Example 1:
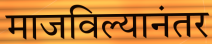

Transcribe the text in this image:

माजविल्यानंतर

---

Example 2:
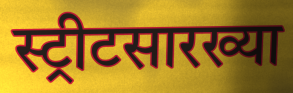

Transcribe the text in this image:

स्ट्रीटसारख्या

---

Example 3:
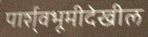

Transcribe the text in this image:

पार्श्वभूमीदेखील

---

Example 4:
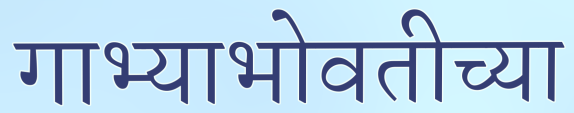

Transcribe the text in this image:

गाभ्याभोवतीच्या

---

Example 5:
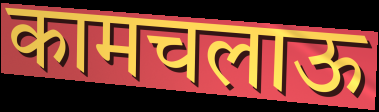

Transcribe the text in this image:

कामचलाऊ